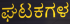
ಘಟಕಗಳ